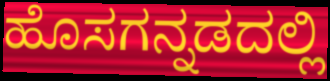
ಹೊಸಗನ್ನಡದಲ್ಲಿ